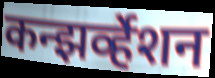
कन्झर्व्हेशन